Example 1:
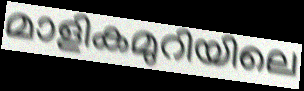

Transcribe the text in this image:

മാളികമുറിയിലെ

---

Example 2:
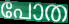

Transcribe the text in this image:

പോത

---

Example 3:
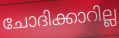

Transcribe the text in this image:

ചോദിക്കാറില്ല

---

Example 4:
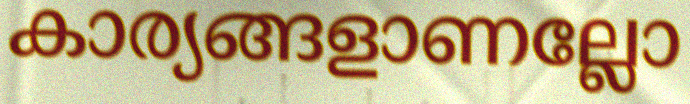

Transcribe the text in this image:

കാര്യങ്ങളാണല്ലോ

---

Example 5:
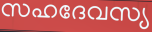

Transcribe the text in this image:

സഹദേവസ്യ